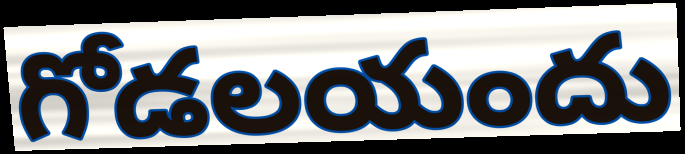
గోడలయందు